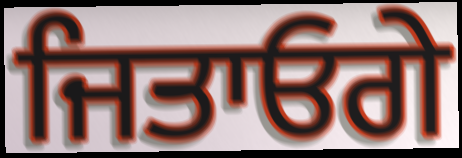
ਜਿਤਾਓਗੇ